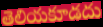
తెలియకూడదు